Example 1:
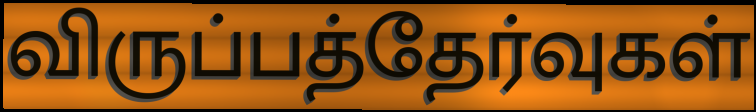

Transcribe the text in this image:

விருப்பத்தேர்வுகள்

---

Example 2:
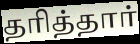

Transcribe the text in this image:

தரித்தார்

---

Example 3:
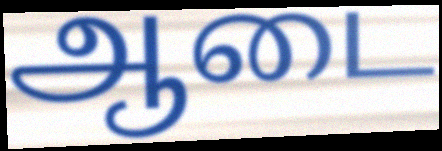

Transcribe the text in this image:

ஆடை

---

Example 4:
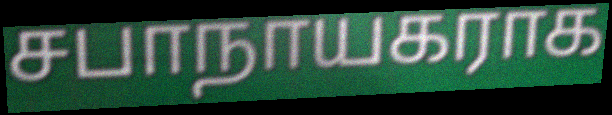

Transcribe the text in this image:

சபாநாயகராக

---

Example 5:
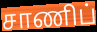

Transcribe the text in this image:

சாணிப்